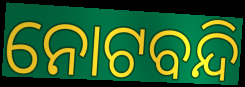
ନୋଟବନ୍ଦି